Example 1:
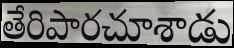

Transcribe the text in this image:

తేరిపారచూశాడు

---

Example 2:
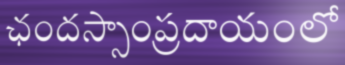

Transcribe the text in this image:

ఛందస్సాంప్రదాయంలో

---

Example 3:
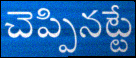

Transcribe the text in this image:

చెప్పినట్టే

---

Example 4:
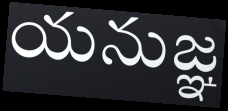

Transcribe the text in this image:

యనుజ్ఞ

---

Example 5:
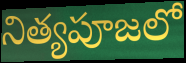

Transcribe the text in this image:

నిత్యపూజలో